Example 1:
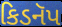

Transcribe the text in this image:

કિડનૅપ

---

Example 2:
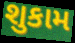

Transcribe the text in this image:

શુકામ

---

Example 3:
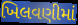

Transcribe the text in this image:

ખિલવણીમાં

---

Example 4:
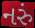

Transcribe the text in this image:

નરું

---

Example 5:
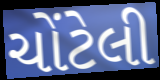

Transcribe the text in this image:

ચોંટેલી